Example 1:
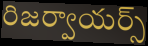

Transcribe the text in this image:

రిజర్వాయర్స్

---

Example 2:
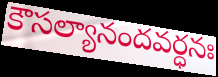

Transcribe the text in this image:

కౌసల్యానందవర్ధనః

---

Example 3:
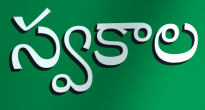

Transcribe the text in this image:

స్వకాల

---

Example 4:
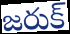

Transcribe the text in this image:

జరుక్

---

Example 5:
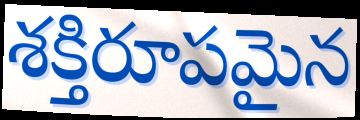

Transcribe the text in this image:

శక్తిరూపమైన